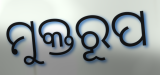
ମୁକ୍ତରୂପ